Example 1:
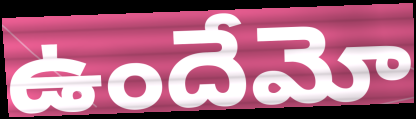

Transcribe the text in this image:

ఉందేమో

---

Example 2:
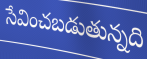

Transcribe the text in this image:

సేవించబడుతున్నది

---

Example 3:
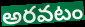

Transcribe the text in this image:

అరవటం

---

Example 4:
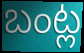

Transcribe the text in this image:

బంట్ల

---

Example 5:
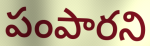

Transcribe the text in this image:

పంపారని